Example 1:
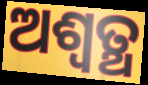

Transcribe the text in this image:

ଅଶ୍ଵତ୍ଥ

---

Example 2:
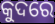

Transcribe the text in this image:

କୁଦରେ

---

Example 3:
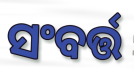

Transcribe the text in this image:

ସଂବର୍ତ୍ତ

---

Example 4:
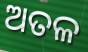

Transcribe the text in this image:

ଅତଳ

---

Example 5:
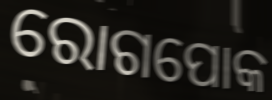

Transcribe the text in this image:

ରୋଗପୋକ